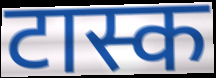
टास्क